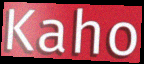
Kaho